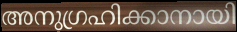
അനുഗ്രഹിക്കാനായി